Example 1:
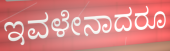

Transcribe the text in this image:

ಇವಳೇನಾದರೂ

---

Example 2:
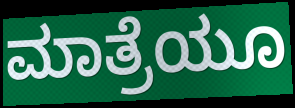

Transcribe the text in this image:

ಮಾತ್ರೆಯೂ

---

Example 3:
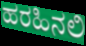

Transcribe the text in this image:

ಹರಹಿನಲಿ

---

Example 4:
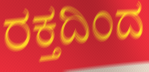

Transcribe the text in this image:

ರಕ್ತದಿಂದ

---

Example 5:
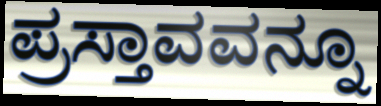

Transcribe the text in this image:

ಪ್ರಸ್ತಾವವನ್ನೂ